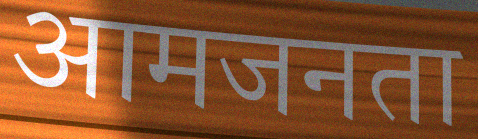
आमजनता